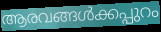
ആരവങ്ങൾക്കപ്പുറം